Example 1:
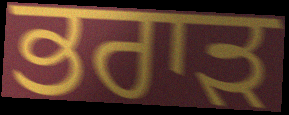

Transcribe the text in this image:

ਭਰਾੜ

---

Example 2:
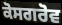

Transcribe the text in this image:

ਕੋਸਗਰੋਵ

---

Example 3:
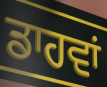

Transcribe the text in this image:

ਡਾਹਵਾਂ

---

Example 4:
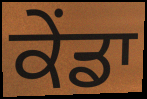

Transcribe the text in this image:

ਕੇਂਡਾ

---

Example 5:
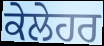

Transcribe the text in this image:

ਕੇਲੇਹਰ